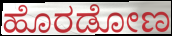
ಹೊರಡೋಣ